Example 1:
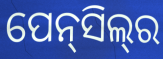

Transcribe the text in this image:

ପେନ୍‍ସିଲ୍‍ର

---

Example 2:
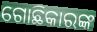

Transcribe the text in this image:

ଗୋଛିକାରଙ୍କ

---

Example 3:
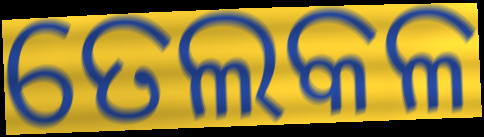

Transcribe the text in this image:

ତେଲକଳ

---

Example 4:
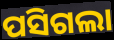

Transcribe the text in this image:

ପସିଗଲା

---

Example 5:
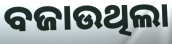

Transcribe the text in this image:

ବଜାଉଥିଲା